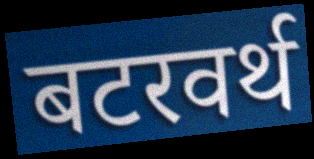
बटरवर्थ